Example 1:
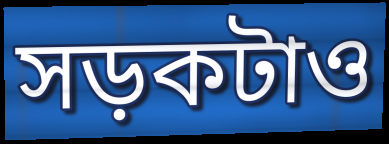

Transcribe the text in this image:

সড়কটাও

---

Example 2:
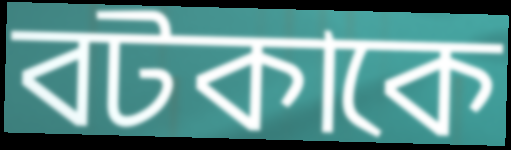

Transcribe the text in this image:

বটকাকে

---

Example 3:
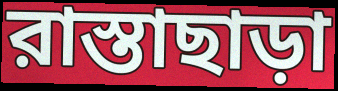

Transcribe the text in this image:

রাস্তাছাড়া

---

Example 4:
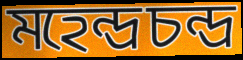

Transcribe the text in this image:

মহেন্দ্রচন্দ্র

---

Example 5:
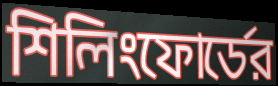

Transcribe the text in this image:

শিলিংফোর্ডের